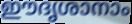
ഈദൃശാനാം